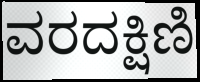
ವರದಕ್ಷಿಣಿ